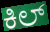
ಕಿಲ್